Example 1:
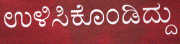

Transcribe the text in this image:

ಉಳಿಸಿಕೊಂಡಿದ್ದು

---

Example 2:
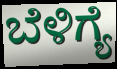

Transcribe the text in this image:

ಬೆಳಿಗ್ಯೆ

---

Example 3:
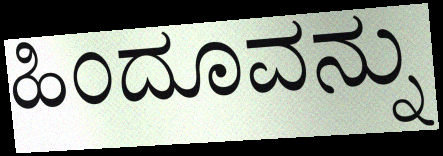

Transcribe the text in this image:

ಹಿಂದೂವನ್ನು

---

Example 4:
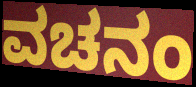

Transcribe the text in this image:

ವಚನಂ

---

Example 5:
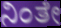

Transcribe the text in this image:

ನಿಂತೇ